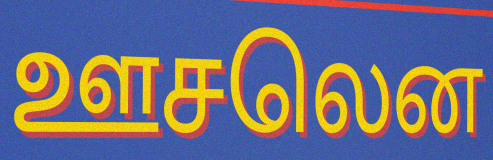
ஊசலென